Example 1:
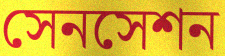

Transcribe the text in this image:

সেনসেশন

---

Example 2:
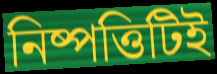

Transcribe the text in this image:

নিষ্পত্তিটিই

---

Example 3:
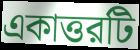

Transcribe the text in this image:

একাত্তরটি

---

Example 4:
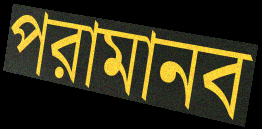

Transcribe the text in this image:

পরামানব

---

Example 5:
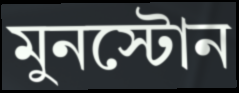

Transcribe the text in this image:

মুনস্টোন